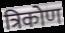
त्रिकोण